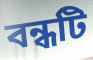
বন্ধটি